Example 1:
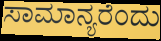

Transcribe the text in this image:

ಸಾಮಾನ್ಯರೆಂದು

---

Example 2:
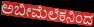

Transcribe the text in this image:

ಅಬೀಮೆಲೆಕನಿಂದ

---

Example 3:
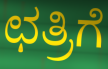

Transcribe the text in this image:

ಛತ್ರಿಗೆ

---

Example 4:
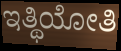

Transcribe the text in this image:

ಇತ್ಥಿಯೋತಿ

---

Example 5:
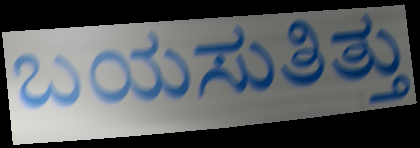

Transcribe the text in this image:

ಬಯಸುತಿತ್ತು